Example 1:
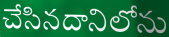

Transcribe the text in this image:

చేసినదానిలోను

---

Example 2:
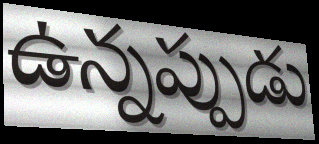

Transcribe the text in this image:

ఉన్నప్పుడు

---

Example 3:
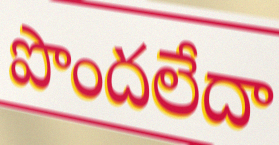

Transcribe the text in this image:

పొందలేదా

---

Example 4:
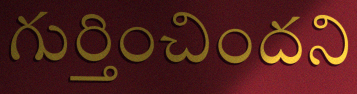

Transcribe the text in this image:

గుర్తించిందని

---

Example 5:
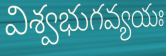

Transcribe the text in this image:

విశ్వభుగవ్యయః